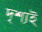
দৃশ্যই